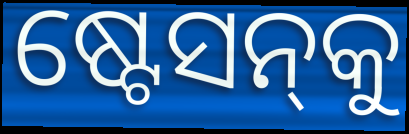
ଷ୍ଟେସନ୍‍କୁ